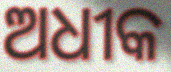
ଅଧୀକ